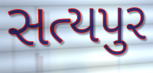
સત્યપુર